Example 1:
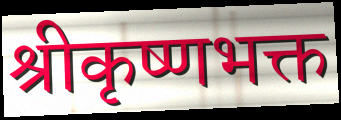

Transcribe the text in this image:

श्रीकृष्णभक्त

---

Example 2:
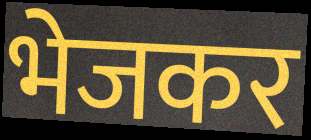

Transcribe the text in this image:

भेजकर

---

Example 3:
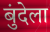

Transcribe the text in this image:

बुंदेला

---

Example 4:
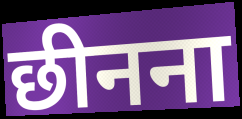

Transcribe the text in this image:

छीनना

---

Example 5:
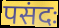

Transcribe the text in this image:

पसंदः